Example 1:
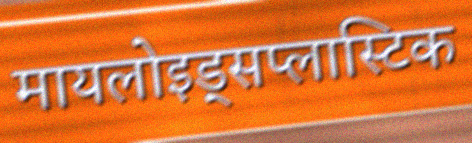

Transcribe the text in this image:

मायलोइड्सप्लास्टिक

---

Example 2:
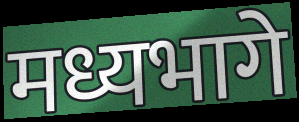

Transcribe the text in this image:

मध्यभागे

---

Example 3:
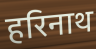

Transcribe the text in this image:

हरिनाथ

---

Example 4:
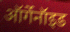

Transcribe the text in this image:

ऑर्गेनॉइड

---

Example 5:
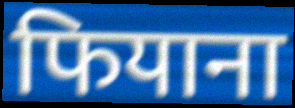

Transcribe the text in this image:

फियाना